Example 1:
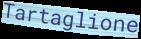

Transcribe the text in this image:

Tartaglione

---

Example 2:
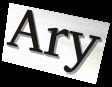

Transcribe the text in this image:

Ary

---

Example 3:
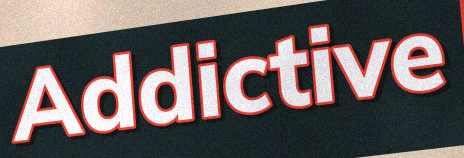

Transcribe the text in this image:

Addictive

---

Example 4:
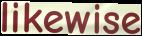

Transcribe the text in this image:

likewise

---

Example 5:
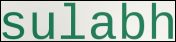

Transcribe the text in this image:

sulabh